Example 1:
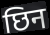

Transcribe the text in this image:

छिन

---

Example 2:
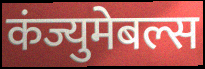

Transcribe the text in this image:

कंज्युमेबल्स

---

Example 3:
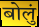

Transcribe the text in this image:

बोलुं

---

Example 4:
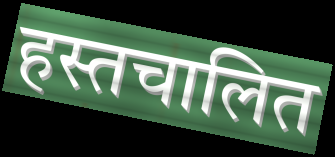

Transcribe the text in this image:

हस्तचालित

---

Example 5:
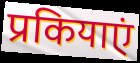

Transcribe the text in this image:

प्रकियाएं